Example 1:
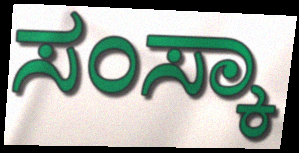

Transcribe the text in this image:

ಸಂಸ್ಕಾ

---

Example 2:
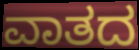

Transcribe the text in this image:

ವಾತದ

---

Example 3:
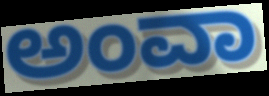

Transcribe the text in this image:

ಅಂವಾ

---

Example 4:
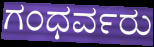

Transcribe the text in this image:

ಗಂಧರ್ವರು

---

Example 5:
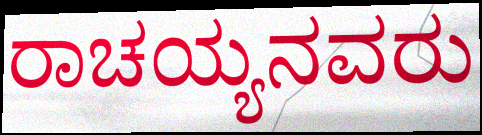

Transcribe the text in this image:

ರಾಚಯ್ಯನವರು